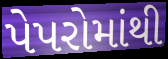
પેપરોમાંથી